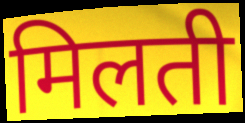
मिलती